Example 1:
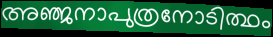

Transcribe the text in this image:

അഞ്ജനാപുത്രനോടിത്ഥം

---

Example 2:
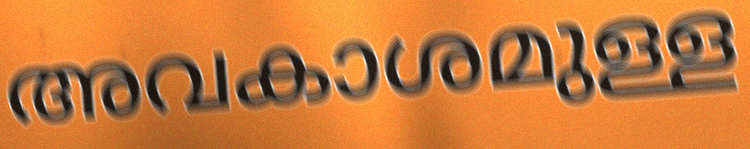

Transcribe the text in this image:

അവകാശമുള്ള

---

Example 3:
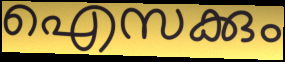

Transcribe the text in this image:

ഐസക്കും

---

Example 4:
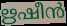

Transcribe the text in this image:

ഋഷീൻ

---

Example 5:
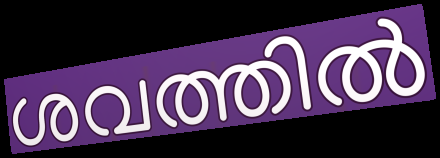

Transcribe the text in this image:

ശവത്തിൽ